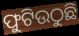
ଫୁଟିଉଠୁଛି